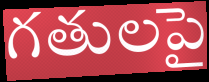
గతులపై